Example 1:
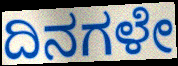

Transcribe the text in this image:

ದಿನಗಳೇ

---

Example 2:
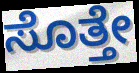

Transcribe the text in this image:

ಸೊತ್ತೇ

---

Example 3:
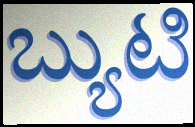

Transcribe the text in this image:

ಬ್ಯುಟಿ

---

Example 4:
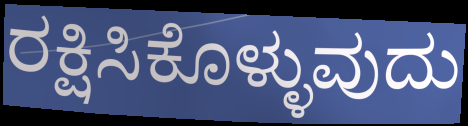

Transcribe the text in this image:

ರಕ್ಷಿಸಿಕೊಳ್ಳುವುದು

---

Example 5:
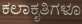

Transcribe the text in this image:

ಕಲಾಕೃತಿಗಳೂ